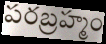
పరబ్రహ్మం